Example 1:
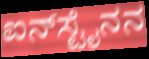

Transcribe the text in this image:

ಐನ್‌ಸ್ಟೈನನ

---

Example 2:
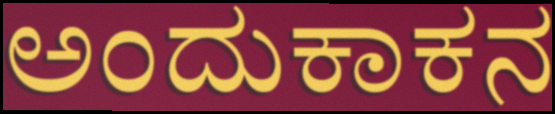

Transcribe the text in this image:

ಅಂದುಕಾಕನ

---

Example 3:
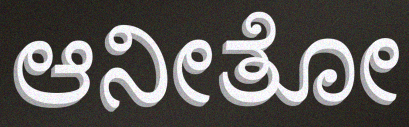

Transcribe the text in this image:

ಆನೀತೋ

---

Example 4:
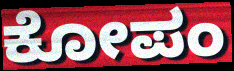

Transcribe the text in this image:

ಕೋಪಂ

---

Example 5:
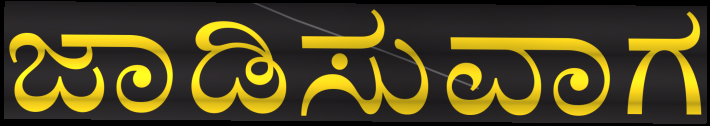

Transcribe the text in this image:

ಜಾಡಿಸುವಾಗ